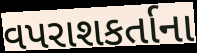
વપરાશકર્તાના